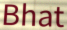
Bhat